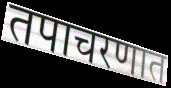
तपाचरणात